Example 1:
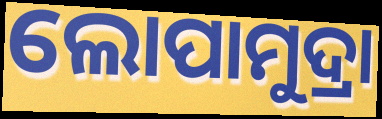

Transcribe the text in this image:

ଲୋପାମୁଦ୍ରା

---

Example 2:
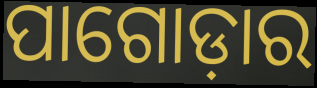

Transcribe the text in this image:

ପାଗୋଡ଼ାର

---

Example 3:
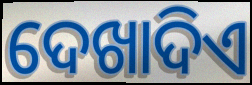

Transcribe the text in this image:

ଦେଖାଦିଏ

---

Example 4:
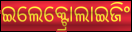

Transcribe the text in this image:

ଇଲେକ୍ଟ୍ରୋଲାଇଜିଂ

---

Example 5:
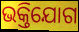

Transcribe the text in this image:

ଭକ୍ତିଯୋଗ